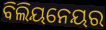
ବିଲିୟନେୟର